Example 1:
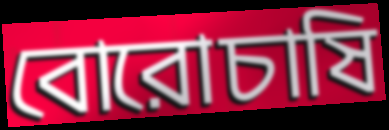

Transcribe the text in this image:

বোরোচাষি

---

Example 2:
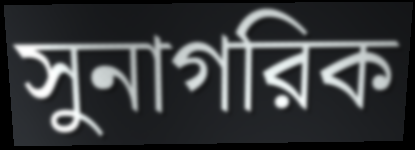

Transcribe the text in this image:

সুনাগরিক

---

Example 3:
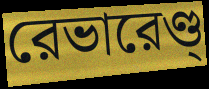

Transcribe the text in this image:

রেভারেণ্ড্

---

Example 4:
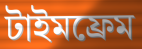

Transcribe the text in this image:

টাইমফ্রেম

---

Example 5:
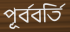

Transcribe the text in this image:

পূর্ববর্তি